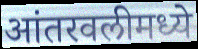
आंतरवलीमध्ये